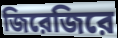
জিরেজিরে